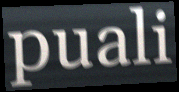
puali